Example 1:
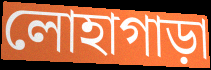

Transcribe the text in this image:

লোহাগাড়া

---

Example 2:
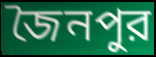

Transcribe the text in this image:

জৈনপুর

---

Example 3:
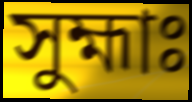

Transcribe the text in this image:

সুহ্মাঃ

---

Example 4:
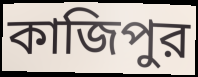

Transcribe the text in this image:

কাজিপুর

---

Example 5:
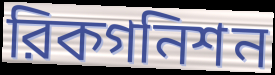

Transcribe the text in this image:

রিকগনিশন